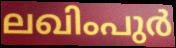
ലഖിംപുർ